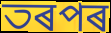
তৰপৰ